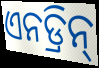
ଏନଡ୍ରିନ୍